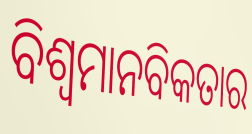
ବିଶ୍ଵମାନବିକତାର